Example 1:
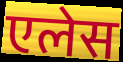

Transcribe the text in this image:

एलेस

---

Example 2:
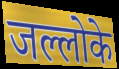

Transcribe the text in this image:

जल्लोके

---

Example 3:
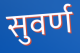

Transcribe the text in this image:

सुवर्ण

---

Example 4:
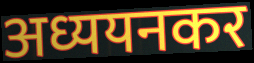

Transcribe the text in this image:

अध्ययनकर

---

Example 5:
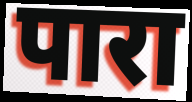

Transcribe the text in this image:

पारा